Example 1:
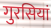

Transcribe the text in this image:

गुरसियां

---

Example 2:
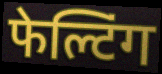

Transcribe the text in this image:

फेल्टिंग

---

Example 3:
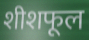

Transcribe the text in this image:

शीशफूल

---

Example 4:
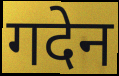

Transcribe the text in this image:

गदेन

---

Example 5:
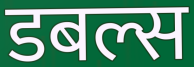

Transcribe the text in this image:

डबल्‍स